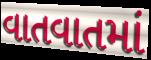
વાતવાતમાં